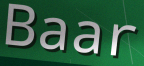
Baar